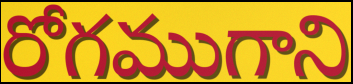
రోగముగాని